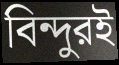
বিন্দুরই